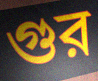
গুর